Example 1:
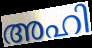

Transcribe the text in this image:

അഹി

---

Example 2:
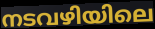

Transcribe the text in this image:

നടവഴിയിലെ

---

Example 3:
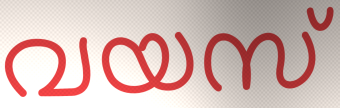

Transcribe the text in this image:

വയസ്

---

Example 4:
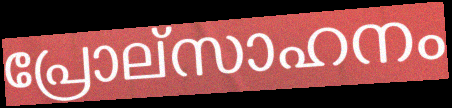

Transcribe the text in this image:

പ്രോല്സാഹനം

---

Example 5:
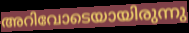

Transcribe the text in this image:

അറിവോടെയായിരുന്നു